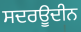
ਸਦਰਊਦੀਨ